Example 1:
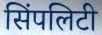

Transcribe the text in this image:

सिंपलिटी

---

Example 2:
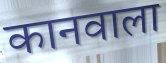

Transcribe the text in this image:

कानवाला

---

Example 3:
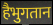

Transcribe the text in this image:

हैभुगतान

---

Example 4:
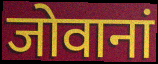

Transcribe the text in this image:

जोवानां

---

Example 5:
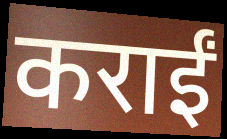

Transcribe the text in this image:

कराईं